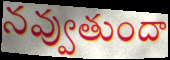
నవ్వుతుందా